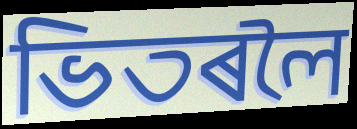
ভিতৰলৈ